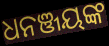
ଧନଞ୍ଜୟଙ୍କ